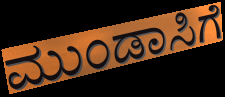
ಮುಂಡಾಸಿಗೆ